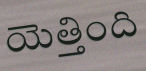
యెత్తింది